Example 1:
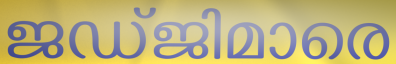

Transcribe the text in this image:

ജഡ്ജിമാരെ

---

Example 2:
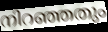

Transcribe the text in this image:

നിറഞ്ഞതും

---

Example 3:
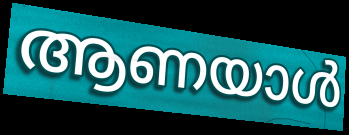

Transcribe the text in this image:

ആണയാൾ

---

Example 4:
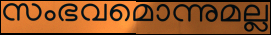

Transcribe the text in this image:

സംഭവമൊന്നുമല്ല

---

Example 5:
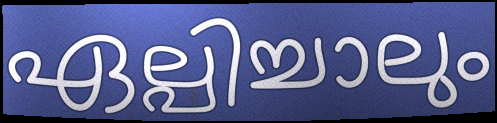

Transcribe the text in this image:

ഏല്പിച്ചാലും